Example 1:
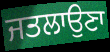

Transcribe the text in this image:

ਜਤਲਾਉਣਾ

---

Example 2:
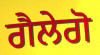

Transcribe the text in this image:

ਗੈਲੇਗੋ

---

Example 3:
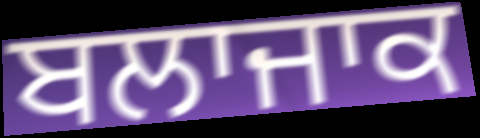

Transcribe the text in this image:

ਬਲਾਜਾਕ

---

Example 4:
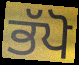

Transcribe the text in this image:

ਭੱਪੋ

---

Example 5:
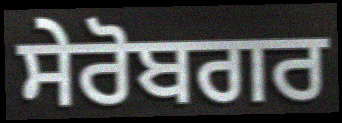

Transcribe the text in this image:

ਸੇਰੋਬਗਰ